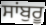
ਸਾਂਬੁਰੂ